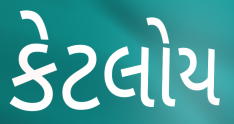
કેટલોય